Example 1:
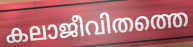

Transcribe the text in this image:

കലാജീവിതത്തെ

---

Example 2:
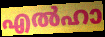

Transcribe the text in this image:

എൽഹാ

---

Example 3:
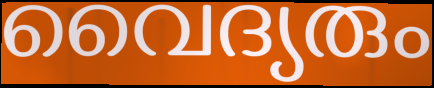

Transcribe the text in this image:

വൈദ്യരും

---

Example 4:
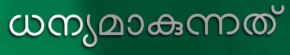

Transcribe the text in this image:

ധന്യമാകുന്നത്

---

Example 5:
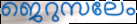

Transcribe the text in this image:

ജെറുസലേം